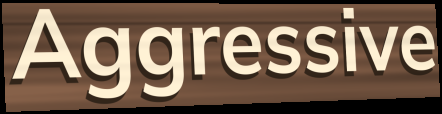
Aggressive